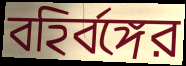
বহির্বঙ্গের